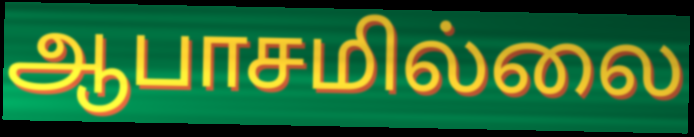
ஆபாசமில்லை